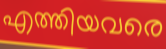
എത്തിയവരെ